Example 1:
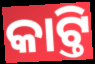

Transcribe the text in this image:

କାଟ୍ତି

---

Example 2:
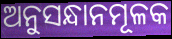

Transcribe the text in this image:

ଅନୁସନ୍ଧାନମୂଳକ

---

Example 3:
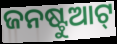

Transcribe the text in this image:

ଜନଷ୍ଟୁଆଟ୍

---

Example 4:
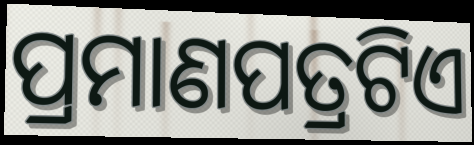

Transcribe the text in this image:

ପ୍ରମାଣପତ୍ରଟିଏ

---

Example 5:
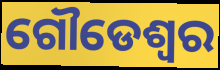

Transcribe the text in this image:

ଗୌଡେଶ୍ୱର